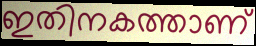
ഇതിനകത്താണ്